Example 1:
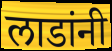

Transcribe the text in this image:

लाडांनी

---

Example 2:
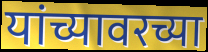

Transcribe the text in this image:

यांच्यावरच्या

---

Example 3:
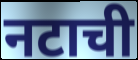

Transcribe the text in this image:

नटाची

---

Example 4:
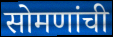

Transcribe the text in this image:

सोमणांची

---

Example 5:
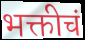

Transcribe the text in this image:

भक्तीचं